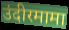
उंदीरमामा